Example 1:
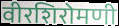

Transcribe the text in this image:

वीरशिरोमणी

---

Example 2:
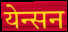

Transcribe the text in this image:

येन्सन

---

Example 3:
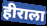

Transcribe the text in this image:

हीराला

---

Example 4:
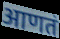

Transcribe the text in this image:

आणतं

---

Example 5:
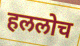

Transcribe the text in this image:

हललोच